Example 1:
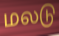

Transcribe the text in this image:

மலடு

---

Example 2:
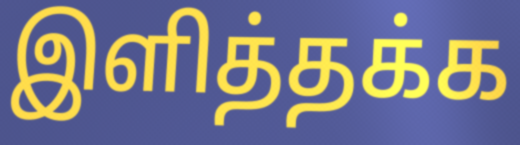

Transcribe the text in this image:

இளித்தக்க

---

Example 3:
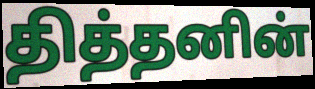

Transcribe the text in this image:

தித்தனின்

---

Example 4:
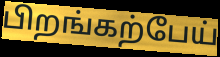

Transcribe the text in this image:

பிறங்கற்பேய்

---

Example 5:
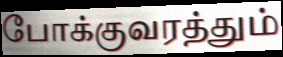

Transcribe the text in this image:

போக்குவரத்தும்